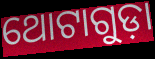
ଥୋଟାଗୁଡ଼ା